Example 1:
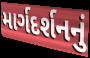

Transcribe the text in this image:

માર્ગદર્શનનું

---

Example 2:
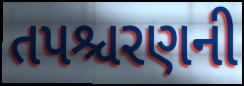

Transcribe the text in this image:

તપશ્ચરણની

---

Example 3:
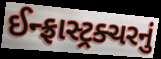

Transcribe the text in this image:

ઈન્ફ્રાસ્ટ્રક્ચરનું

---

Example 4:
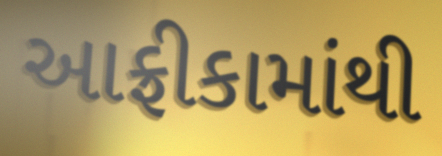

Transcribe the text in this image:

આફ્રીકામાંથી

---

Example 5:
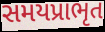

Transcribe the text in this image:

સમયપ્રાભૃત